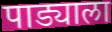
पाड्याला